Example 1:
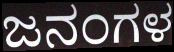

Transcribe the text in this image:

ಜನಂಗಳ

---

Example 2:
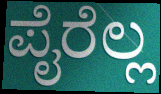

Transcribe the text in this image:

ಪೈರೆಲ್ಲ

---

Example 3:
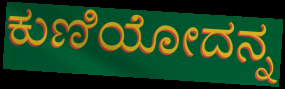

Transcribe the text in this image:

ಕುಣಿಯೋದನ್ನ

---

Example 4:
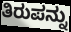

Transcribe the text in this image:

ತಿರುಪನ್ನು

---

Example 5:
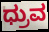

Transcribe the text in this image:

ಧ್ರುವ